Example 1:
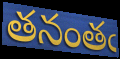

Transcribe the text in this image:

తనంతఁ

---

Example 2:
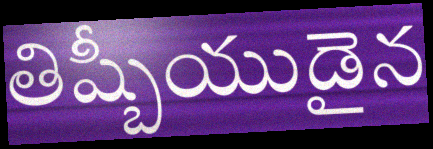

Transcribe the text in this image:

తిష్బీయుడైన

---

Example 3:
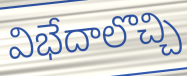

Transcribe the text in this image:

విభేదాలొచ్చి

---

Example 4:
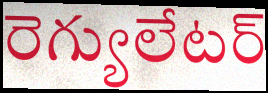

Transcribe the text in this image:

రెగ్యులేటర్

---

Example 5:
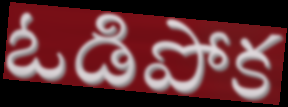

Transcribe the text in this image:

ఓడిపోక